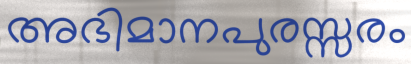
അഭിമാനപുരസ്സരം